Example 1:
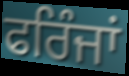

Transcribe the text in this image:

ਫਰਿੰਜਾਂ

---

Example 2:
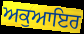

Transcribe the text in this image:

ਅਕੁਆਇਰ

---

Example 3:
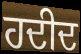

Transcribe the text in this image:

ਹਦੀਦ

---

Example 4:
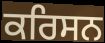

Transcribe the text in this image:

ਕਰਿਸਨ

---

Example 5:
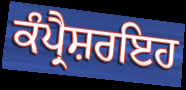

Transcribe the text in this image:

ਕੰਪ੍ਰੈਸ਼ਰਇਹ